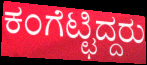
ಕಂಗೆಟ್ಟಿದ್ದರು